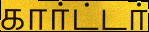
கார்ட்டர்